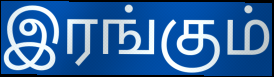
இரங்கும்